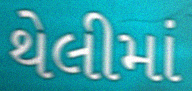
થેલીમાં